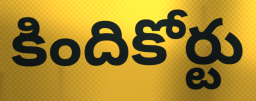
కిందికోర్టు